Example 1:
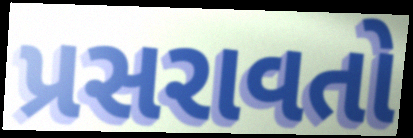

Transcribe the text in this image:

પ્રસરાવતો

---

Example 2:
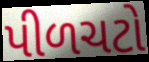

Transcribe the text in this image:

પીળચટો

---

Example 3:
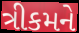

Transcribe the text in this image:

ત્રીકમને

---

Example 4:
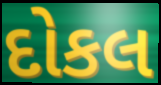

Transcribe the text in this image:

દોકલ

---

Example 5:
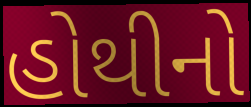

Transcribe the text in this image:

હોથીનો